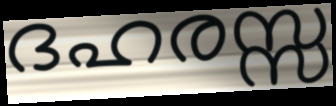
ദഹരസ്സ